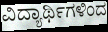
ವಿದ್ಯಾರ್ಥಿಗಳಿಂದ